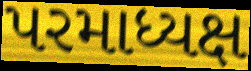
પરમાધ્યક્ષ